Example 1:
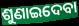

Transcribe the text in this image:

ଶୁଣାଇଦେବା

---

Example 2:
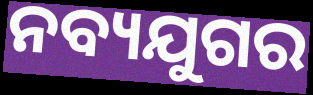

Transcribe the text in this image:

ନବ୍ୟଯୁଗର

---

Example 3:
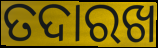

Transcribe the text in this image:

ତଦାରଖ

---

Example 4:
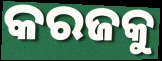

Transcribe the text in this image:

କରଜକୁ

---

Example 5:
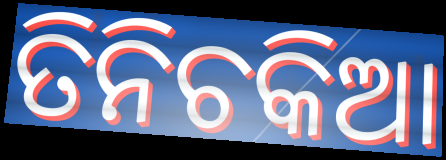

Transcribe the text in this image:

ତିନିଚକିଆ